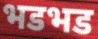
भडभड